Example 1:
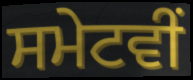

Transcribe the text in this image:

ਸਮੇਟਵੀਂ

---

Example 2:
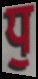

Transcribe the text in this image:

ਧੁ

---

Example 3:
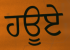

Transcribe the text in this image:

ਹਊਏ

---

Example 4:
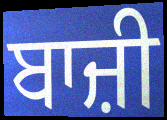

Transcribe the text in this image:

ਬਾਜ਼ੀ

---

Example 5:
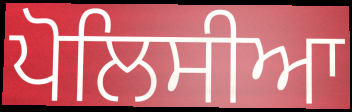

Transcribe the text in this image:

ਪੋਲਿਸੀਆ